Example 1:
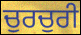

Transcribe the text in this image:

ਚੁਰਚੁਰੀ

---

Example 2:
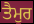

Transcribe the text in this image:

ਤੈਮੁਰ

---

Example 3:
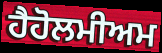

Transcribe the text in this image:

ਹੈਹੋਲਮੀਅਮ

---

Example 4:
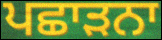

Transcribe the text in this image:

ਪਛਾੜਨਾ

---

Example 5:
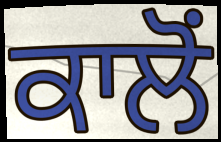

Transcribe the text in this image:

ਕਾਲੋਂ